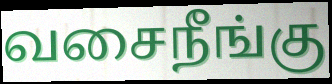
வசைநீங்கு